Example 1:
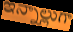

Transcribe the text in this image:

ఇన్నాల్లుగా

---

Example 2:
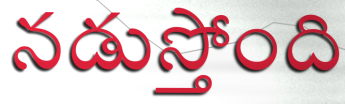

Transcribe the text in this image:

నడుస్తోంది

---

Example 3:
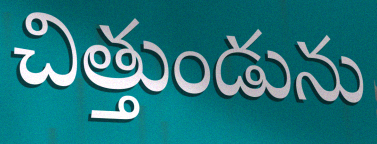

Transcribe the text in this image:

చిత్తుండును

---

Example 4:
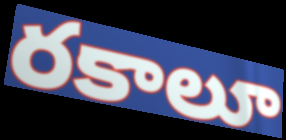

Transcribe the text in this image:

రకాలూ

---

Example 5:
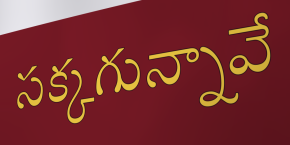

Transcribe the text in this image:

సక్కగున్నావే